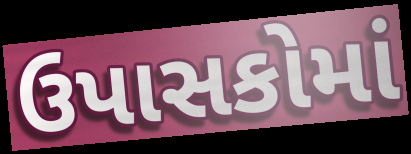
ઉપાસકોમાં